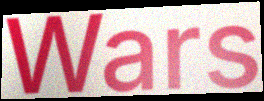
Wars